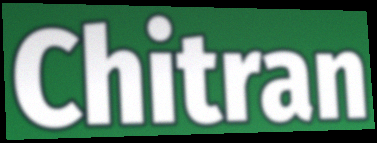
Chitran